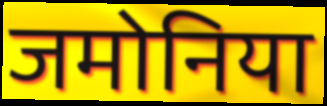
जमोनिया